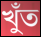
খুঁত